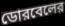
ডোরবেলের